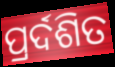
ପ୍ରର୍ଦଶିତ